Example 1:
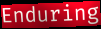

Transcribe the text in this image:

Enduring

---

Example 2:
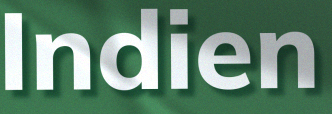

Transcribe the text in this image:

Indien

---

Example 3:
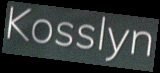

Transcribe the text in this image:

Kosslyn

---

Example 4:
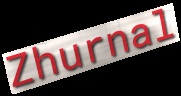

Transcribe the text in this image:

Zhurnal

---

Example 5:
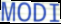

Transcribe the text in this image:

MODI